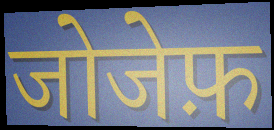
जोजेफ़